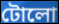
টোলো